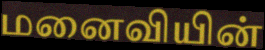
மனைவியின்